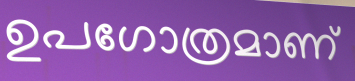
ഉപഗോത്രമാണ്